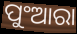
ପୁଂଆରା